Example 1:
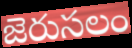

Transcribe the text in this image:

జెరుసలం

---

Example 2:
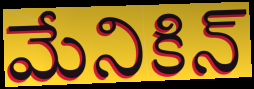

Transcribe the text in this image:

మేనికిన్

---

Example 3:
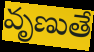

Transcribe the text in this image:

వృణుతే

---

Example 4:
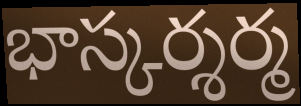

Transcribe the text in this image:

భాస్కర్శర్మ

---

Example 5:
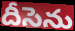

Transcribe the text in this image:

దీసెను